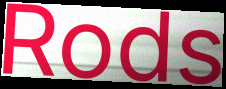
Rods